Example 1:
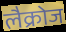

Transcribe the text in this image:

लैक्रोज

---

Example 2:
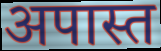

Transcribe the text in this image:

अपास्त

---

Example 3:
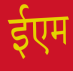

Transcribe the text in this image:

ईएम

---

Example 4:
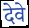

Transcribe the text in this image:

देवे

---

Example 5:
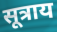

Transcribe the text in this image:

सूत्राय